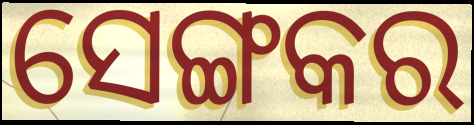
ସେଙ୍ଗକର